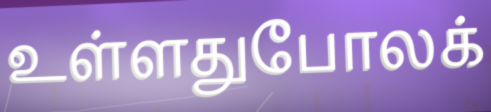
உள்ளதுபோலக்